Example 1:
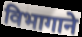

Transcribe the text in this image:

विभागाने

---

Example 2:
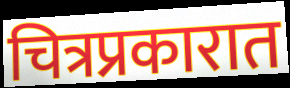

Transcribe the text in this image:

चित्रप्रकारात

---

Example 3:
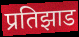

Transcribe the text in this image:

प्रतिझाड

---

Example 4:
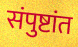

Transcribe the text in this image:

संपुष्टांत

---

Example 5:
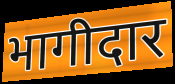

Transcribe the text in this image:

भागीदार